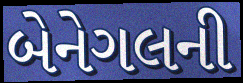
બેનેગલની